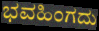
ಭವಹಿಂಗದು